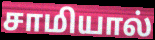
சாமியால்